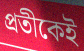
প্রতীকেই